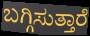
ಬಗ್ಗಿಸುತ್ತಾರೆ